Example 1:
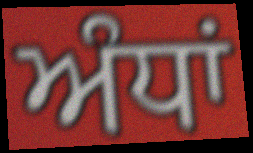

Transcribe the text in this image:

ਅੰਧਾਂ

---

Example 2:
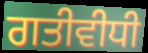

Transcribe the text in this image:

ਗਤੀਵੀਧੀ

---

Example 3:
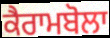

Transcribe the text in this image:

ਕੈਰਾਮਬੋਲਾ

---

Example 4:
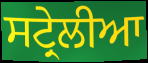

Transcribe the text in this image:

ਸਟ੍ਰੇਲੀਆ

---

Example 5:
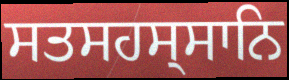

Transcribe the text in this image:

ਸਤਸਹਸ੍ਸਾਨਿ